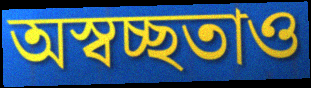
অস্বচ্ছতাও